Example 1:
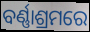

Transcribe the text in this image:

ବର୍ଣ୍ଣାଶ୍ରମରେ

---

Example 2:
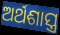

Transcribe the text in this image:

ଅର୍ଥଶାସ୍ତ୍ର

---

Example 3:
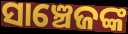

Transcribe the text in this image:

ସାଞ୍ଚେଜଙ୍କ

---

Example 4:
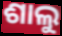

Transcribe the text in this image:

ଶାଲୁ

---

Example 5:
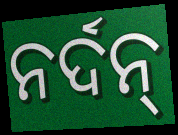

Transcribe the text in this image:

ନର୍ଦନ୍